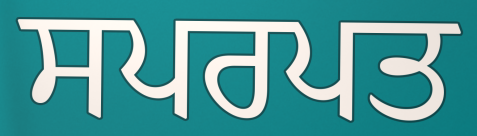
ਸਪਰਪਤ